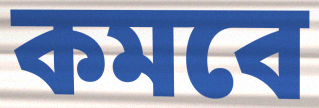
কমবে